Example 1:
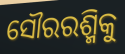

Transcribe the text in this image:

ସୌରରଶ୍ମିକୁ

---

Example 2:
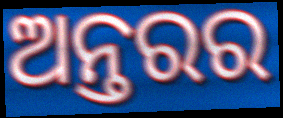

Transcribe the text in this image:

ଅନ୍ତରର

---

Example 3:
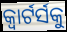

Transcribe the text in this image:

କ୍ୱାର୍ଟର୍ସକୁ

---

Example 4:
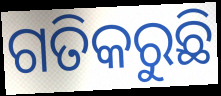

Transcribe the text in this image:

ଗତିକରୁଛି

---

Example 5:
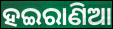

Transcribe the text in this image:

ହଇରାଣିଆ